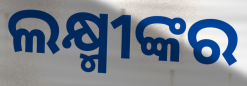
ଲକ୍ଷ୍ମୀଙ୍କର